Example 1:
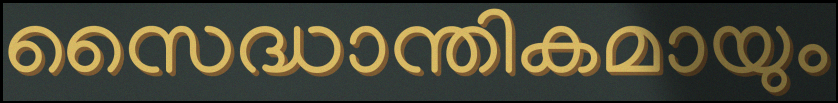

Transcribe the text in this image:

സൈദ്ധാന്തികമായും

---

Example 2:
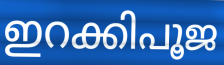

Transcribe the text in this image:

ഇറക്കിപൂജ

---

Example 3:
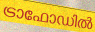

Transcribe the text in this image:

ട്രാഫോഡിൽ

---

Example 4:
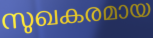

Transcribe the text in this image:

സുഖകരമായ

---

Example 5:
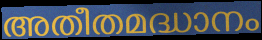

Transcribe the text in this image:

അതീതമദ്ധാനം